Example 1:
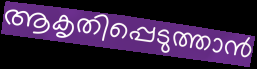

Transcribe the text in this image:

ആകൃതിപ്പെടുത്താൻ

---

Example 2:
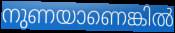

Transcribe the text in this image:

നുണയാണെങ്കിൽ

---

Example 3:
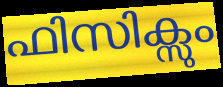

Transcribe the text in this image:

ഫിസിക്സും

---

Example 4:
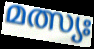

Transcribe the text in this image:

മത്സ്യഃ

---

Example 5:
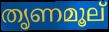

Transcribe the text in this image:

തൃണമൂല്